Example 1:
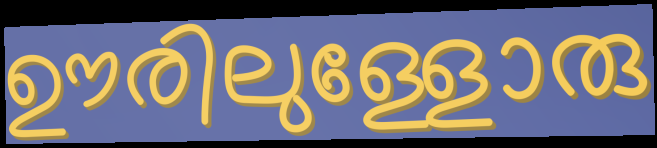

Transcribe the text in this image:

ഊരിലുള്ളോരു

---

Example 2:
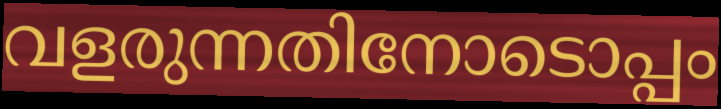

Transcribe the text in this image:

വളരുന്നതിനോടൊപ്പം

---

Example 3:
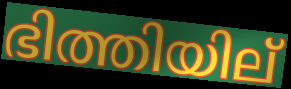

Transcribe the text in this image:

ഭിത്തിയില്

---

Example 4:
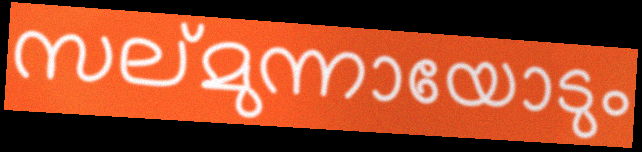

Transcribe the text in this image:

സല്മുന്നായോടും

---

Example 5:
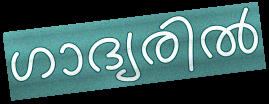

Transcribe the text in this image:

ഗാദ്യരിൽ